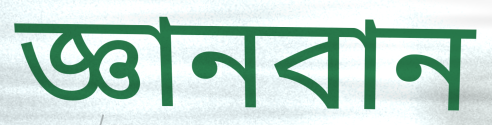
জ্ঞানবান